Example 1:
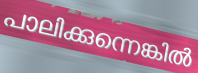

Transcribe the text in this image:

പാലിക്കുന്നെങ്കിൽ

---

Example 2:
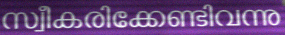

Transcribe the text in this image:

സ്വീകരിക്കേണ്ടിവന്നു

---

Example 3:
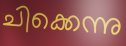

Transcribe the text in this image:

ചിക്കെന്നു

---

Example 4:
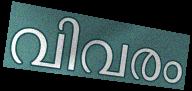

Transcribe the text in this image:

വിവരം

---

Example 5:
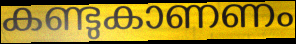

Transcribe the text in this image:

കണ്ടുകാണണം